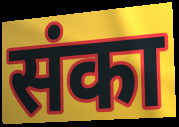
संका